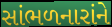
સાંભળનારાંને